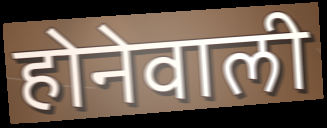
होनेवाली